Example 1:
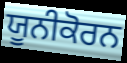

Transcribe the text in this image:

ਯੂਨੀਕੋਰਨ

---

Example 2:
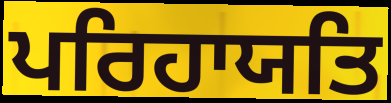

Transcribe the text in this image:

ਪਰਿਹਾਯਤਿ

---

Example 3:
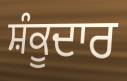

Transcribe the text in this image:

ਸ਼ੰਕੂਦਾਰ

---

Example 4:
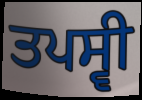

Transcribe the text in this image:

ਤਪਸ੍ਵੀ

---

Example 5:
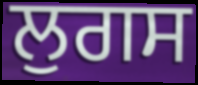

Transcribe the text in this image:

ਲੁਗਸ